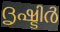
ദൃഷ്ടിർ